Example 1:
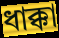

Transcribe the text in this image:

ধাক্কা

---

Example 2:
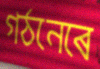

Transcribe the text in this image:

গঠনেৰে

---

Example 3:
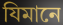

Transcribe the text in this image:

যিমানে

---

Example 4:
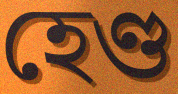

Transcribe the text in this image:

হেণ্ড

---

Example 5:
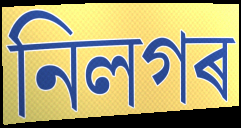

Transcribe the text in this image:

নিলগৰ